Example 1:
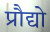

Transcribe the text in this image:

प्रौद्यो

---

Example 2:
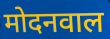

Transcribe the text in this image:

मोदनवाल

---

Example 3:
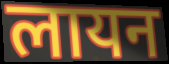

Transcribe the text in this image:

लायन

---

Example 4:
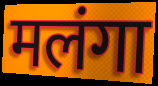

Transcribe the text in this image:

मलंगा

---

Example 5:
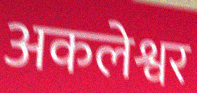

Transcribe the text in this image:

अकलेश्वर